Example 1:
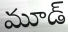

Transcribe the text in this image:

మూడ్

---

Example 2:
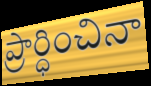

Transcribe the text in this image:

ప్రార్ధించినా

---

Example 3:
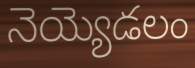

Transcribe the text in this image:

నెయ్యెడలం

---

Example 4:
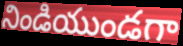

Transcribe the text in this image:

నిండియుండగా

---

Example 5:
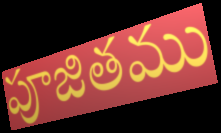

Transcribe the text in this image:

పూజితము